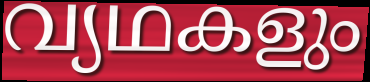
വ്യഥകളും